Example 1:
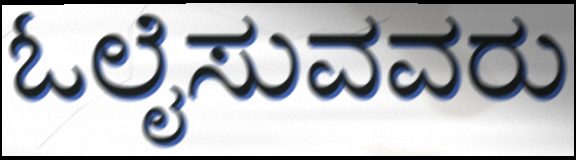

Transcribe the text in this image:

ಓಲೈಸುವವರು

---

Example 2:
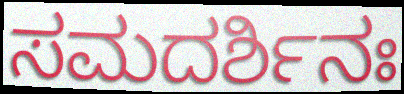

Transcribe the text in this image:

ಸಮದರ್ಶಿನಃ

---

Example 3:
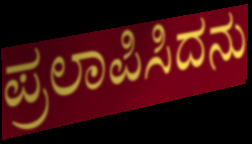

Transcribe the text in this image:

ಪ್ರಲಾಪಿಸಿದನು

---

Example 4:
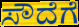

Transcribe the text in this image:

ಸೌದೆಗೆ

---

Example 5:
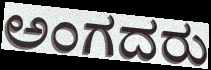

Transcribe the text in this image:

ಅಂಗದರು